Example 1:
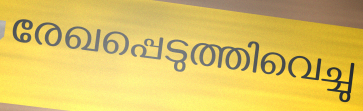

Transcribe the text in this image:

രേഖപ്പെടുത്തിവെച്ചു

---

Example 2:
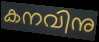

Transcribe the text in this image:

കനവിനു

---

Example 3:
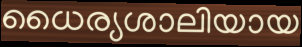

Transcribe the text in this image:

ധൈര്യശാലിയായ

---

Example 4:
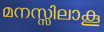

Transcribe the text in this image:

മനസ്സിലാകൂ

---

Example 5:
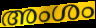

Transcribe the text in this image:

അംശം